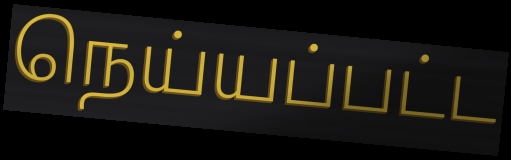
நெய்யப்பட்ட